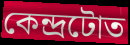
কেন্দ্ৰটোত